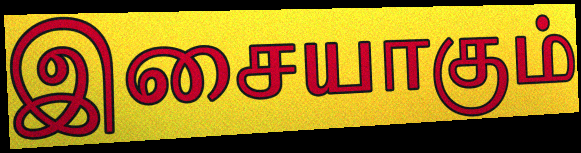
இசையாகும்